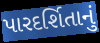
પારદર્શિતાનું